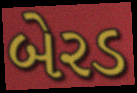
બેરડ